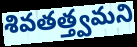
శివతత్త్వమని